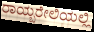
ರಾಯ್ಬರೇಲಿಯಲ್ಲಿ